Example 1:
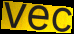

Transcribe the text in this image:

vec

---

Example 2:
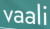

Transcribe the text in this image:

vaali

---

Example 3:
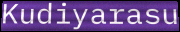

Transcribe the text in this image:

Kudiyarasu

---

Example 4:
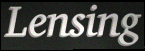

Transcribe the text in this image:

Lensing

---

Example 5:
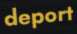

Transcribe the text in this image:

deport